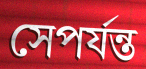
সেপর্যন্ত